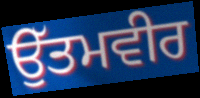
ਉੱਤਮਵੀਰ